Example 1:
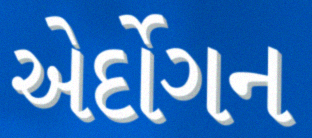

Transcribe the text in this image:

એર્દોગન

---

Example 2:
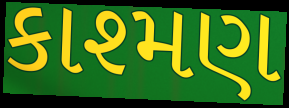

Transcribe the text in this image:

કાશ્મણ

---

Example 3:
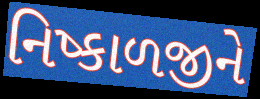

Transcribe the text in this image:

નિષ્કાળજીને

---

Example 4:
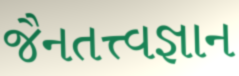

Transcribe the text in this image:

જૈનતત્ત્વજ્ઞાન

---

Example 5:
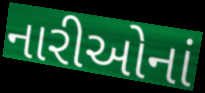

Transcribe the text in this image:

નારીઓનાં